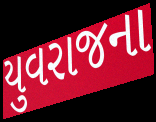
યુવરાજના